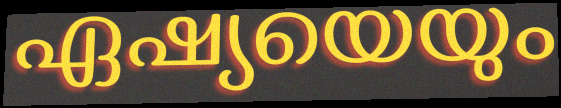
ഏഷ്യയെയും